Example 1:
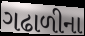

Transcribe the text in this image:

ગઢાળીના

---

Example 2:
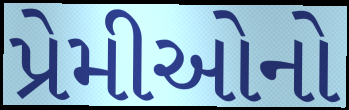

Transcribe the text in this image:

પ્રેમીઓનો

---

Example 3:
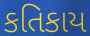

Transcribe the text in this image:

કતિકાય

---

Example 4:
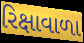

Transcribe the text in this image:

રિક્ષાવાળા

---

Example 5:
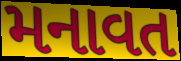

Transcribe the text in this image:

મનાવત